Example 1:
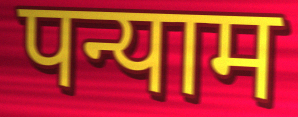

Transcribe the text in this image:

पन्याम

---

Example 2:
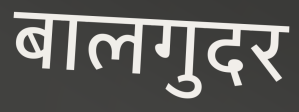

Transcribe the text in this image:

बालगुदर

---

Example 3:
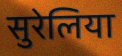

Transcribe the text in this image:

सुरेलिया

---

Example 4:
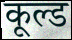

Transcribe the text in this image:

कूल्ड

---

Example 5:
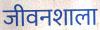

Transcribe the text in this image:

जीवनशाला